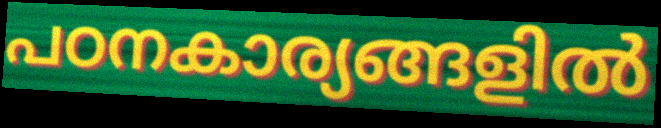
പഠനകാര്യങ്ങളിൽ